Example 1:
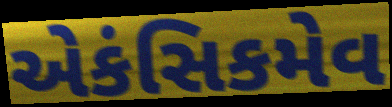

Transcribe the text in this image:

એકંસિકમેવ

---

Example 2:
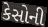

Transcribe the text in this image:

કેસોની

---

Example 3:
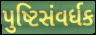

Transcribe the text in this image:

પુષ્ટિસંવર્ધક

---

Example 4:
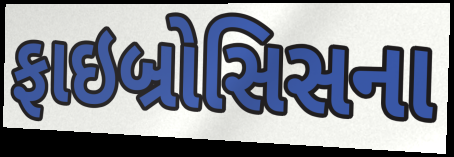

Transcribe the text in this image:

ફાઇબ્રોસિસના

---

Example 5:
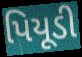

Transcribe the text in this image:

પિયૂડી